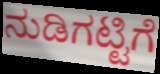
ನುಡಿಗಟ್ಟಿಗೆ